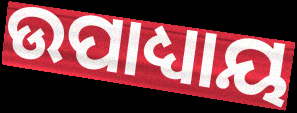
ଉପାଧ୍ୟାୟ